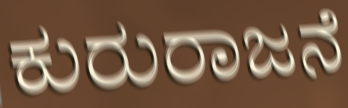
ಕುರುರಾಜನೆ